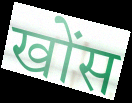
खोंस